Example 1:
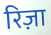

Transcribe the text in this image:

रिज़ा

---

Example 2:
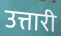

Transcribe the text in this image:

उत्तारी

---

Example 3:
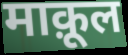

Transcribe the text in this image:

माक़ूल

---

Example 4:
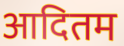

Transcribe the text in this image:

आदितम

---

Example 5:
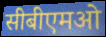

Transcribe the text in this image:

सीबीएमओ